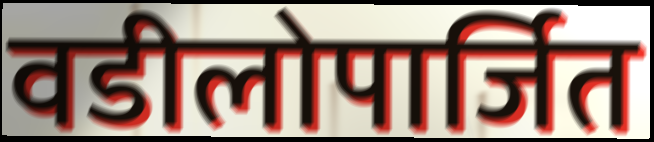
वडीलोपार्जित